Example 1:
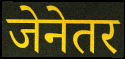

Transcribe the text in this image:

जेनेतर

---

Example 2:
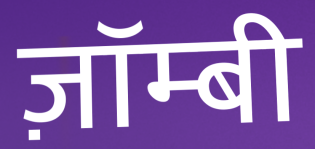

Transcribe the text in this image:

ज़ॉम्बी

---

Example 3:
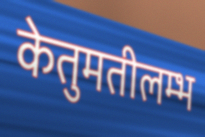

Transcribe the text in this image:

केतुमतीलम्भ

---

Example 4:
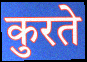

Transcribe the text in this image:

कुरते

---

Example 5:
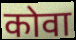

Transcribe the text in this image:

कोवा